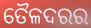
ତୈଳଦରର